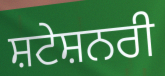
ਸ਼ਟੇਸ਼ਨਰੀ